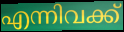
എന്നിവക്ക്